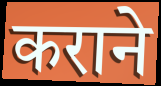
कराने